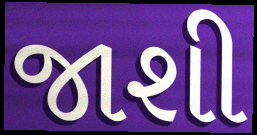
જાશી